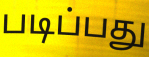
படிப்பது